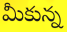
మీకున్న